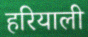
हरियाली